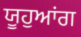
ਯੂਹੁਆਂਗ